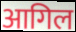
आगिल